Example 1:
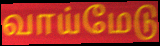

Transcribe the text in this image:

வாய்மேடு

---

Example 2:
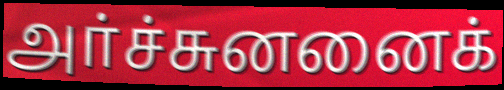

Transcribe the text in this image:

அர்ச்சுனனைக்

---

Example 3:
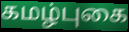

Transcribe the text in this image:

கமழ்புகை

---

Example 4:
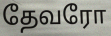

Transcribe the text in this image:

தேவரோ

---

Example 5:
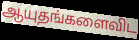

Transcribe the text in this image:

ஆயுதங்களைவிட